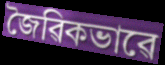
জৈৱিকভাৱে